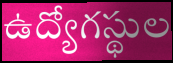
ఉద్యోగస్థుల